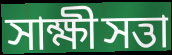
সাক্ষীসত্তা